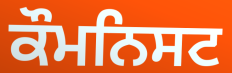
ਕੌਮਨਿਸਟ